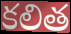
కలిత